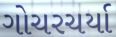
ગોચરચર્યા